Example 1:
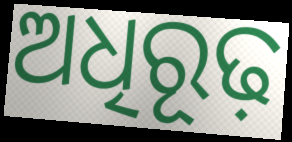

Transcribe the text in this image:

ଅଧିରୂଢ଼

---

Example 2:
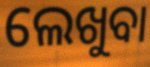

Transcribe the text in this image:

ଲେଖୁବା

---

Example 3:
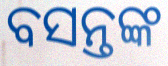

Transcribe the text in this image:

ବସନ୍ତଙ୍କ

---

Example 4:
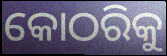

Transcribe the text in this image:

କୋଠରିକୁ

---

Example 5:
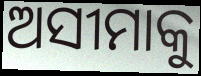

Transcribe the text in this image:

ଅସୀମାକୁ